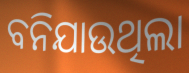
ବନିଯାଉଥିଲା